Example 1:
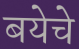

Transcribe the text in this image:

बयेचे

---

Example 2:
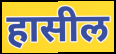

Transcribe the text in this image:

हासील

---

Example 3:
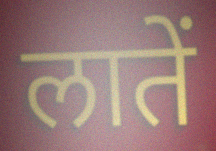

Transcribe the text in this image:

लातें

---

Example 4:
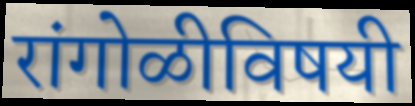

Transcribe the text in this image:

रांगोळीविषयी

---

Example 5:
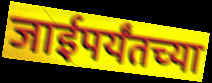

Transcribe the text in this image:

जाईपर्यंतच्या